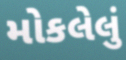
મોકલેલું